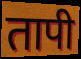
तापी